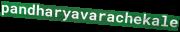
pandharyavarachekale